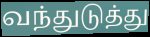
வந்துடுத்து